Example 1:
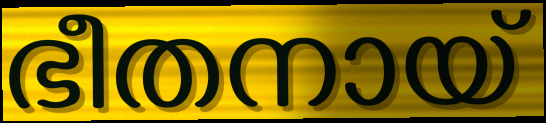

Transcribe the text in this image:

ഭീതനായ്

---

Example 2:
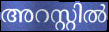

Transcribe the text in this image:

അറസ്റ്റിൽ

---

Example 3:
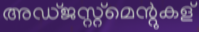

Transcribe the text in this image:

അഡ്ജസ്റ്റ്മെന്റുകള്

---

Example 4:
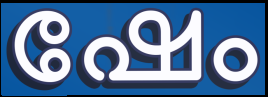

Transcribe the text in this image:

ഷേം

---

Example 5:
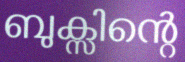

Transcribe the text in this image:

ബുക്സിന്റെ